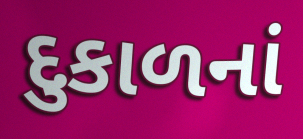
દુકાળનાં